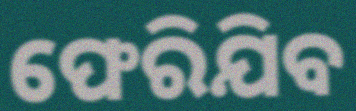
ଫେରିଯିବ